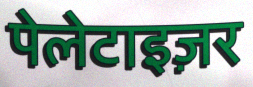
पेलेटाइज़र